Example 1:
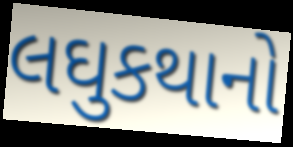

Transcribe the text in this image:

લઘુકથાનો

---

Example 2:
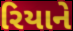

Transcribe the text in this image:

રિયાને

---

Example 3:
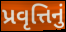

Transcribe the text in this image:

પ્રવૃત્તિનું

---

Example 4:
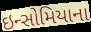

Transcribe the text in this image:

ઇન્સોમિયાના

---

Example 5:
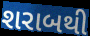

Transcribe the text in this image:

શરાબથી